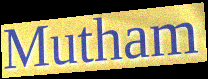
Mutham